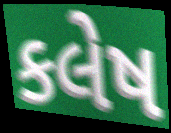
કલેષ